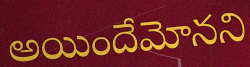
అయిందేమోనని